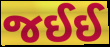
જઈઈ